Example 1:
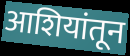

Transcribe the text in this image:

आशियांतून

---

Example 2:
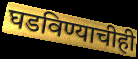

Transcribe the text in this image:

घडविण्याचीही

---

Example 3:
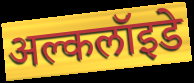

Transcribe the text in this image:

अल्कलॉइडे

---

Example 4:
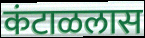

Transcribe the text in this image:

कंटाळलास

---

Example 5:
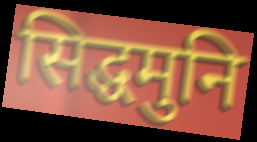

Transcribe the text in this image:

सिद्धमुनि